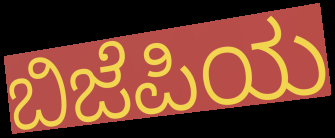
ಬಿಜೆಪಿಯ